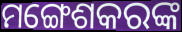
ମଙ୍ଗେଶକରଙ୍କ